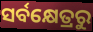
ସର୍ବକ୍ଷେତ୍ରରୁ